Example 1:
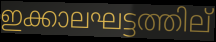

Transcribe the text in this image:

ഇക്കാലഘട്ടത്തില്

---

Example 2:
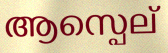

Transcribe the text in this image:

ആസ്പെല്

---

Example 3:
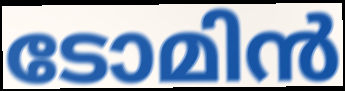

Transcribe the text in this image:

ടോമിൻ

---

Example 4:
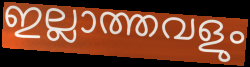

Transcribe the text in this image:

ഇല്ലാത്തവളും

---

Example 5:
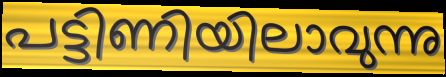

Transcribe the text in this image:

പട്ടിണിയിലാവുന്നു